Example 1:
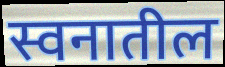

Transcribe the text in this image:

स्वनातील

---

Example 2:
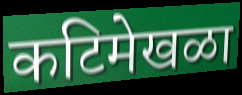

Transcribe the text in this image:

कटिमेखळा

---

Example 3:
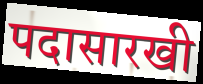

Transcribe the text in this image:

पदासारखी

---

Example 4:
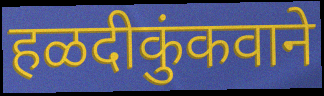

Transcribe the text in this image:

हळदीकुंकवाने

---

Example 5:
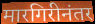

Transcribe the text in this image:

मारगिरीनंतर